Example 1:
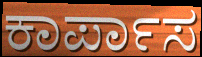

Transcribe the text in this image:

ಕಾರ್ಪಾಸ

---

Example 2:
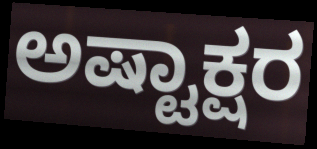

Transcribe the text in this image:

ಅಷ್ಟಾಕ್ಷರ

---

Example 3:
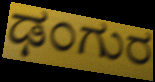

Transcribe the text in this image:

ಢಂಗುರ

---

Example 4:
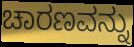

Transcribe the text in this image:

ಚಾರಣವನ್ನು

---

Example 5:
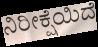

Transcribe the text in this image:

ನಿರೀಕ್ಷೆಯಿದೆ